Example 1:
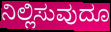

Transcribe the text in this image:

ನಿಲ್ಲಿಸುವುದೂ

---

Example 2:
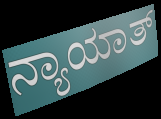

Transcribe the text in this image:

ನ್ಯಾಯಾತ್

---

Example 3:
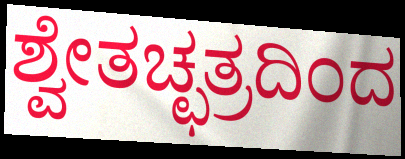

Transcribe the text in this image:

ಶ್ವೇತಚ್ಛತ್ರದಿಂದ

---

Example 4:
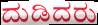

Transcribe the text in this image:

ದುಡಿದರು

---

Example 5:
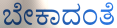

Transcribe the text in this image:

ಬೇಕಾದಂತೆ